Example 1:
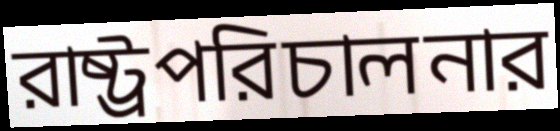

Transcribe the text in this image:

রাষ্ট্রপরিচালনার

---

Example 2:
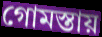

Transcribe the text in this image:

গোমস্তায়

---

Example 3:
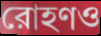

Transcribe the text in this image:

রোহণও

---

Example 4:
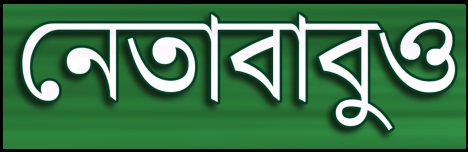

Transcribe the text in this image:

নেতাবাবুও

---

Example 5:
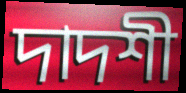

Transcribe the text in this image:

দাদশী